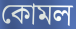
কোমল